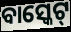
ବାସ୍କେଟ୍